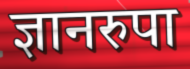
ज्ञानरुपा